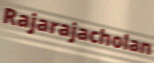
Rajarajacholan